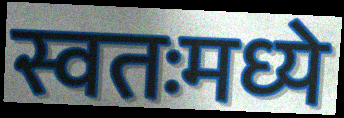
स्वतःमध्ये